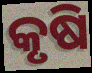
କୃଷି